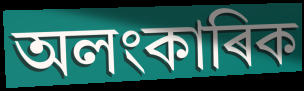
অলংকাৰিক